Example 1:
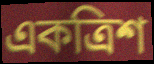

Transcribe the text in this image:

একত্রিশ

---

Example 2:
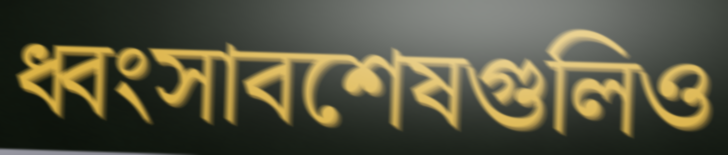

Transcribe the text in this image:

ধ্বংসাবশেষগুলিও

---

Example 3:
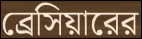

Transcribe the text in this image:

ব্রেসিয়ারের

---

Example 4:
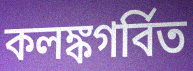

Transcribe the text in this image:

কলঙ্কগর্বিত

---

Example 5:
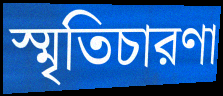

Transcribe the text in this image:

স্মৃতিচারণা